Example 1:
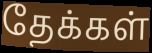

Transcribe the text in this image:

தேக்கள்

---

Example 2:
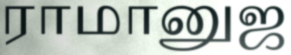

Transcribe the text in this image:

ராமானுஜ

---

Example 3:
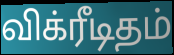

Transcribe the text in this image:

விக்ரீடிதம்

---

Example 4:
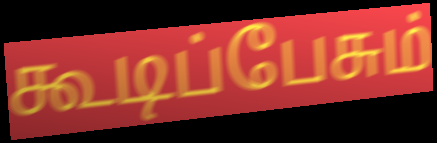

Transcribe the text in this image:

கூடிப்பேசும்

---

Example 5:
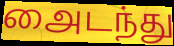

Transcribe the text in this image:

அைடந்து